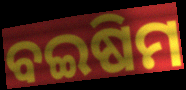
ବଇଷିମ